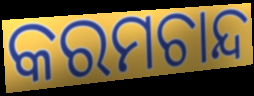
କରମଚାନ୍ଦ